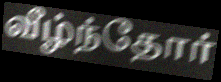
வீழ்ந்தோர்